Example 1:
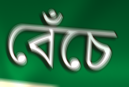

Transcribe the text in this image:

বেঁচে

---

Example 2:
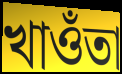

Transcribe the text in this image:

খাওঁতা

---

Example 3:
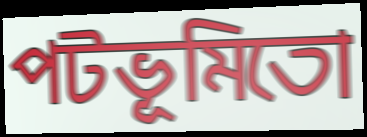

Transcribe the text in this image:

পটভূমিতো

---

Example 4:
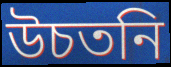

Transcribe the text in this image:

উচতনি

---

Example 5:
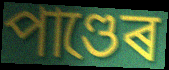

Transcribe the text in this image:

পাণ্ডেৰ